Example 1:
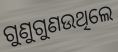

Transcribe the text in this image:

ଗୁଣୁଗୁଣଉଥିଲେ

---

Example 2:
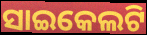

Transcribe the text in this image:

ସାଇକେଲଟି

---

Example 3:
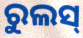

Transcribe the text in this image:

ରୁଲସ୍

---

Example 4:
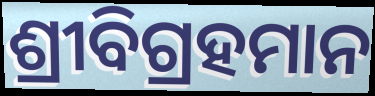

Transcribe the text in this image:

ଶ୍ରୀବିଗ୍ରହମାନ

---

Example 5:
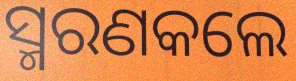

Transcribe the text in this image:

ସ୍ମରଣକଲେ